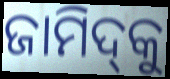
ଜାମିଦ୍‌କୁ